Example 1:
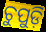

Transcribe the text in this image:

ଚୁପୁଡ଼ି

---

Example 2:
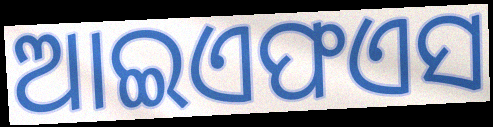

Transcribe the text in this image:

ଆଇଏଫଏସ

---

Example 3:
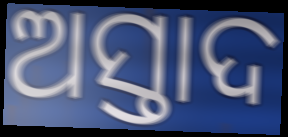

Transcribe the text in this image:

ଅସ୍ତାଦ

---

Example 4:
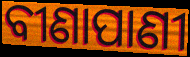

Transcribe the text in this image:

ବୀଣାପାଣୀ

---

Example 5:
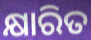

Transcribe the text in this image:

କ୍ଷାରିତ